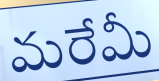
మరేమీ